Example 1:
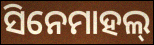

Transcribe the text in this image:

ସିନେମାହଲ୍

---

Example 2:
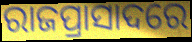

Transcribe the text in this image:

ରାଜପ୍ରାସାଦରେ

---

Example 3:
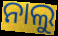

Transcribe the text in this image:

ନାଲୁ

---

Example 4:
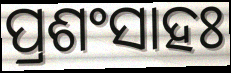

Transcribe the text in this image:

ପ୍ରଶଂସାହଃ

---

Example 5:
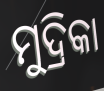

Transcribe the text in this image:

ମୁଦ୍ରିକା